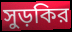
সুড়কির